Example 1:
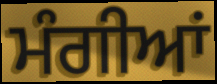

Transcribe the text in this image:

ਮੰਗੀਆਂ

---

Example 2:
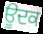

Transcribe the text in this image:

ਊਦਕ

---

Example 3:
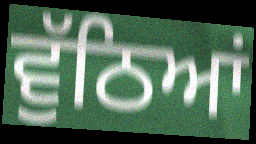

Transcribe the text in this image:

ਵੁੱਠਿਆਂ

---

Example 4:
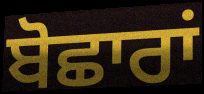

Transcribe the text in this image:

ਬੋਛਾਰਾਂ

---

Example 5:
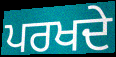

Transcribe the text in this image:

ਪਰਖਦੇ